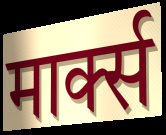
मार्क्‍स